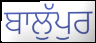
ਬਾਲੁੱਪੁਰ